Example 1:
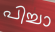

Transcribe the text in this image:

പിച്ചാ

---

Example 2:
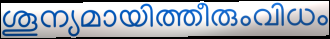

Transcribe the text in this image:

ശൂന്യമായിത്തീരുംവിധം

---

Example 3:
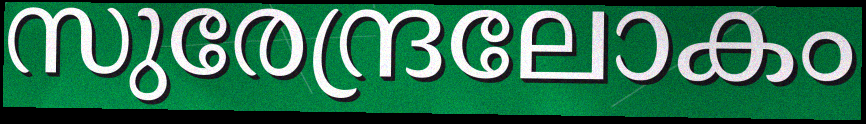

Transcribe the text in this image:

സുരേന്ദ്രലോകം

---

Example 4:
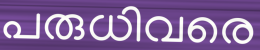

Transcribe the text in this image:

പരുധിവരെ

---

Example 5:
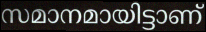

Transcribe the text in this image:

സമാനമായിട്ടാണ്